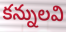
కన్నులవి